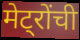
मेट्रोंची